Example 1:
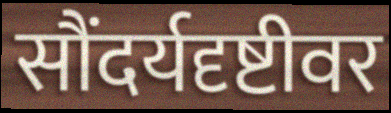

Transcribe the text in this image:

सौंदर्यदृष्टीवर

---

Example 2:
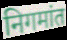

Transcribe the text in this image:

निगमांत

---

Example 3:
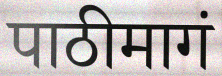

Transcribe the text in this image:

पाठीमागं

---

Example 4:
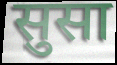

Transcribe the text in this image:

सुसा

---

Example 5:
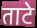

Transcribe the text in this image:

ताटे